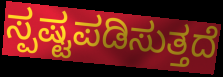
ಸ್ಪಷ್ಟಪಡಿಸುತ್ತದೆ